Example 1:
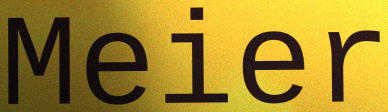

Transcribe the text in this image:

Meier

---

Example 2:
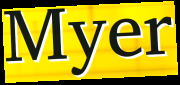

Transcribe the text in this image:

Myer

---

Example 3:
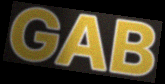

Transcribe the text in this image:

GAB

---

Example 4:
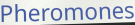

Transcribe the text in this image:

Pheromones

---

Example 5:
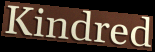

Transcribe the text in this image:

Kindred